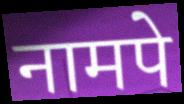
नामपे